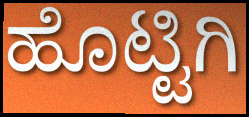
ಹೊಟ್ಟಿಗಿ